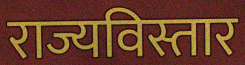
राज्यविस्तार